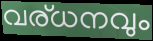
വര്ധനവും